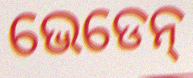
ଭେଡେନ୍